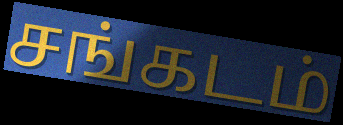
சங்கடம்